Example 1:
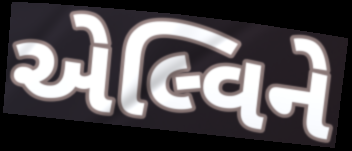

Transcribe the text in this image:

એલ્વિને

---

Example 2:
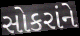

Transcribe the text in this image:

સોકરાંને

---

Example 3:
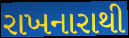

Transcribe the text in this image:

રાખનારાથી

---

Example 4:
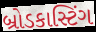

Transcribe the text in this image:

બ્રોડકાસ્ટિંગ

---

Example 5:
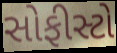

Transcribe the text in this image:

સોફીસ્ટો